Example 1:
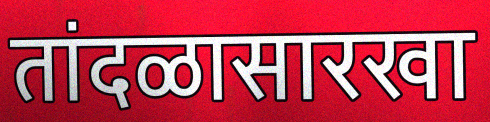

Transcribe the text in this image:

तांदळासारखा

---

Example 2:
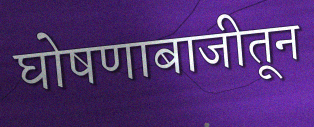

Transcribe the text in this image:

घोषणाबाजीतून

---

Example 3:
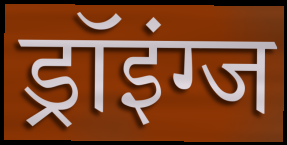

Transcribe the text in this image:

ड्रॉइंग्ज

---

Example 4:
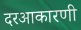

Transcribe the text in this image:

दरआकारणी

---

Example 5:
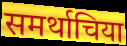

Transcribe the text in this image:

समर्थाचिया